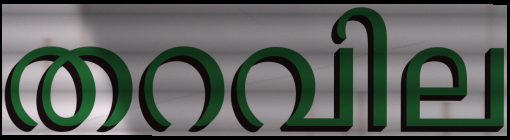
തറവില